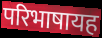
परिभाषायह